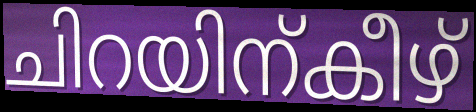
ചിറയിന്കീഴ്